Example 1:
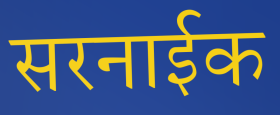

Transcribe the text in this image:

सरनाईक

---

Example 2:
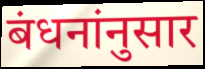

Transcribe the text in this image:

बंधनांनुसार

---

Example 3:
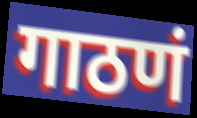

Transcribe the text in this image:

गाठणं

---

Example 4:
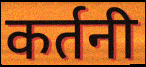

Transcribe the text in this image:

कर्तनी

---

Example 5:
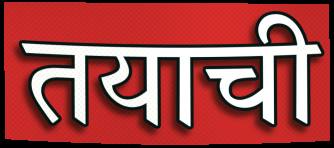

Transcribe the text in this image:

तयाची